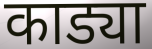
काड्या